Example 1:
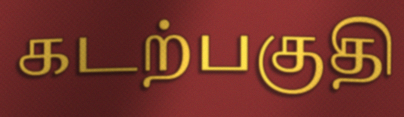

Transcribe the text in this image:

கடற்பகுதி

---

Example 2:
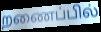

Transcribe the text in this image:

றணைப்பில்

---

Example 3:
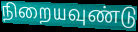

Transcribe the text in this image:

நிறையவுண்டு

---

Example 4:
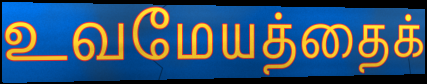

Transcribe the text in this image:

உவமேயத்தைக்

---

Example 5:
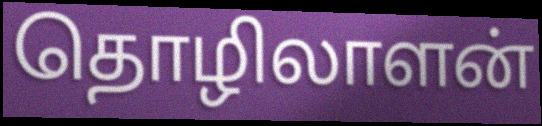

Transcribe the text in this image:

தொழிலாளன்